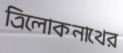
ত্রিলোকনাথের